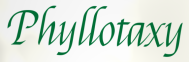
Phyllotaxy